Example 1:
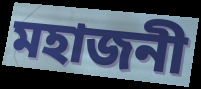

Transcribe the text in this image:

মহাজনী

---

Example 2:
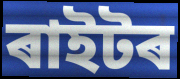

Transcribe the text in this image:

ৰাইটৰ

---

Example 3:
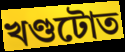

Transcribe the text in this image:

খণ্ডটোত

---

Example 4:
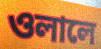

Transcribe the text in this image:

ওলালে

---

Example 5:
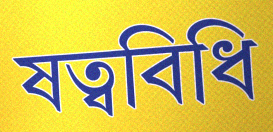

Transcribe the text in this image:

ষত্ববিধি